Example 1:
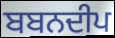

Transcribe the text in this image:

ਬਬਨਦੀਪ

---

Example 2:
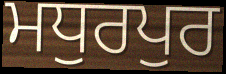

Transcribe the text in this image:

ਮਧੁਰਪੁਰ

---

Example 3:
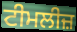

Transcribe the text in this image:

ਟੀਮਲੀਜ਼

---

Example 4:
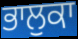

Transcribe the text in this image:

ਭਾਲੁਕਾ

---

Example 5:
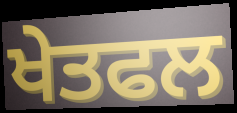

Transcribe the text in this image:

ਖੇਤਫਲ